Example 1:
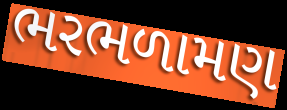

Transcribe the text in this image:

ભરભળામણ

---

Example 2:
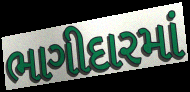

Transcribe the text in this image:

ભાગીદારમાં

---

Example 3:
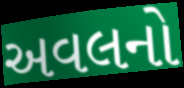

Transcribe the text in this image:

અવલનો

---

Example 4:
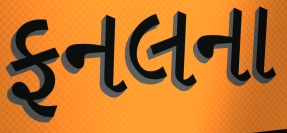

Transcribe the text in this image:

ફનલના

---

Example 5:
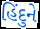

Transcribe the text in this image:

હિંદુને